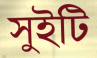
সুইটি